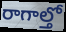
రాగాల్తో